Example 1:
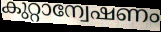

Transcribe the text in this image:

കുറ്റാന്വേഷണം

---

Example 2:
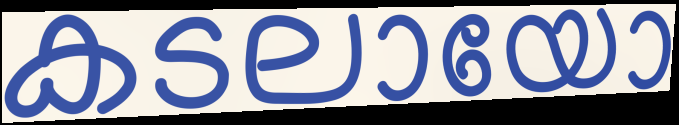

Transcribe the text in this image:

കടലായോ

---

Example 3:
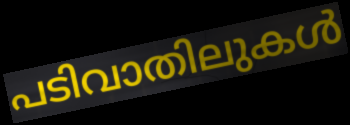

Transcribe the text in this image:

പടിവാതിലുകൾ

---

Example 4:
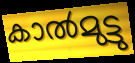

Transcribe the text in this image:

കാൽമുട്ടു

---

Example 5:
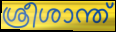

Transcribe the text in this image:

ശ്രീശാന്ത്